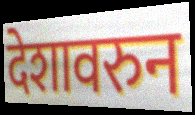
देशावरुन